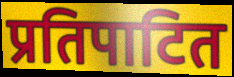
प्रतिपाटित